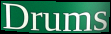
Drums